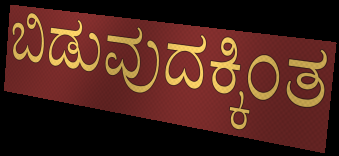
ಬಿಡುವುದಕ್ಕಿಂತ